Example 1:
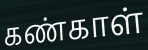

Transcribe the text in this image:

கண்காள்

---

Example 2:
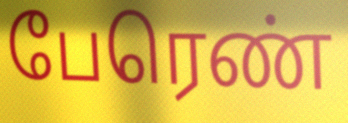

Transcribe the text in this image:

பேரெண்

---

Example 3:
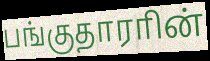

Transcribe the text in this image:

பங்குதாரரின்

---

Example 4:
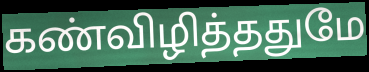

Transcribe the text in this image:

கண்விழித்ததுமே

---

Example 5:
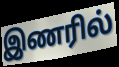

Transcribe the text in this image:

இணரில்